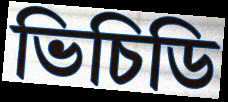
ভিচিডি